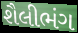
શૈલીભંગ